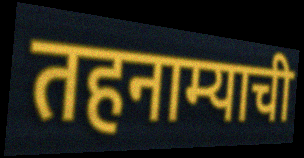
तहनाम्याची